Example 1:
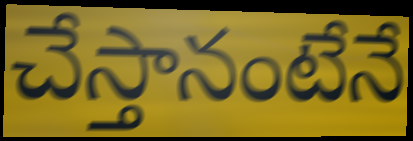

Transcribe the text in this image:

చేస్తానంటేనే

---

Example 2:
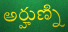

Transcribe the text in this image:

అర్హుణ్ని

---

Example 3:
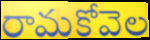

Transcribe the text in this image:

రామకోవెల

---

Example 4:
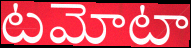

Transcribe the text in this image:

టమోటా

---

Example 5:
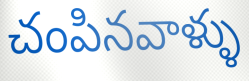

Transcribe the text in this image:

చంపినవాళ్ళు